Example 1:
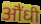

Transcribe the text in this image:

औंधी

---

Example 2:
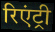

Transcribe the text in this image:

रिएंट्री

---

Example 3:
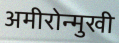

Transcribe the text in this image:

अमीरोन्मुखी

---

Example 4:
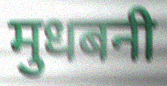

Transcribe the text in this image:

मुधबनी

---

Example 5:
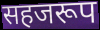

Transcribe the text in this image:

सहजरूप